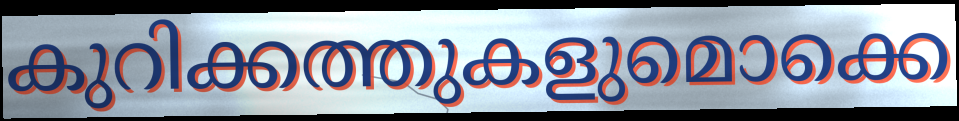
കുറിക്കത്തുകളുമൊക്കെ